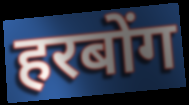
हरबोंग